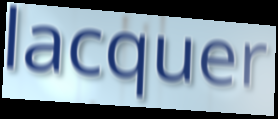
lacquer